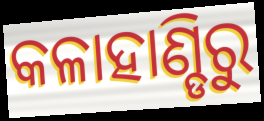
କଳାହାଣ୍ଡିରୁ